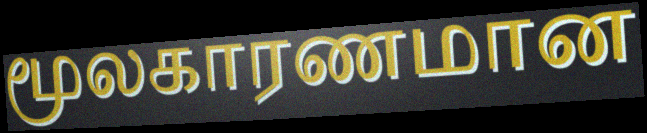
மூலகாரணமான